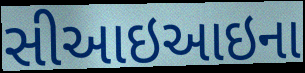
સીઆઇઆઇના